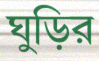
ঘুড়ির